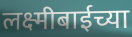
लक्ष्मीबाईच्या